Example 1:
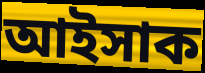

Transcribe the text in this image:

আইসাক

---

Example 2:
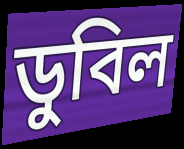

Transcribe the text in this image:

ডুবিল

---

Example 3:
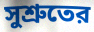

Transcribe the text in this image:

সুশ্রুতের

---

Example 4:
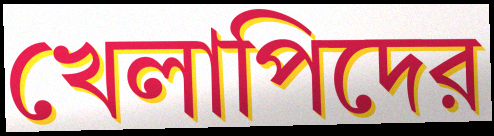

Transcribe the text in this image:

খেলাপিদের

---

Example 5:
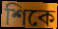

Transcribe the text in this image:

শিকে